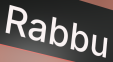
Rabbu